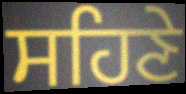
ਸਹਿਣੇ